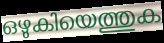
ഒഴുകിയെത്തുക